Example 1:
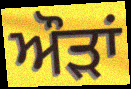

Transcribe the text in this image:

ਔੜਾਂ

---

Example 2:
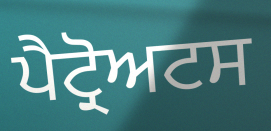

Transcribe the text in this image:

ਪੈਟ੍ਰੋਅਟਸ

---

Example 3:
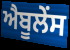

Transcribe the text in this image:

ਐਬੂਲੇਂਸ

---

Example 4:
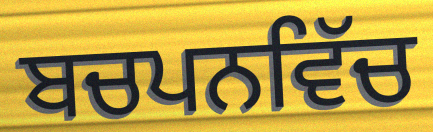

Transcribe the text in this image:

ਬਚਪਨਵਿੱਚ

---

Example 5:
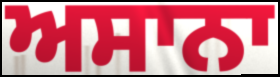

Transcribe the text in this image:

ਅਸਾਨਾ